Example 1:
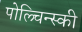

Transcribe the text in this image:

पोल्चिन्स्की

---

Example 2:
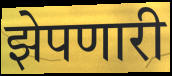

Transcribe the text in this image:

झेपणारी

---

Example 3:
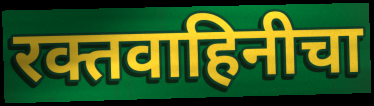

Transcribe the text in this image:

रक्तवाहिनीचा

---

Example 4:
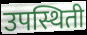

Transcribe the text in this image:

उपस्थिती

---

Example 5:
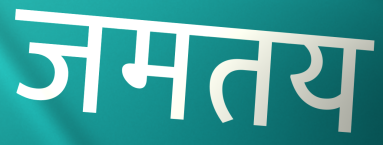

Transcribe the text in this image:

जमतय